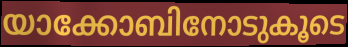
യാക്കോബിനോടുകൂടെ